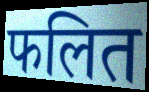
फलित